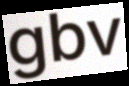
gbv